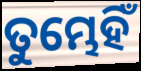
ତୁମ୍ଭେହିଁ